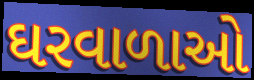
ઘરવાળાઓ